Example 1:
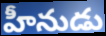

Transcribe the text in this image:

హీనుడు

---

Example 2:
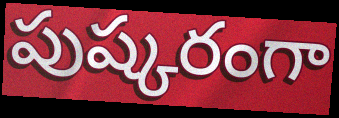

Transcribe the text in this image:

పుష్కరంగా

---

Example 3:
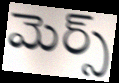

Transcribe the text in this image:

మెర్స్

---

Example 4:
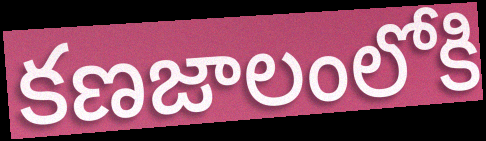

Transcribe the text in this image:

కణజాలంలోకి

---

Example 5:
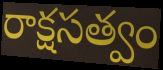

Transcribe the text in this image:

రాక్షసత్వం